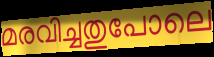
മരവിച്ചതുപോലെ